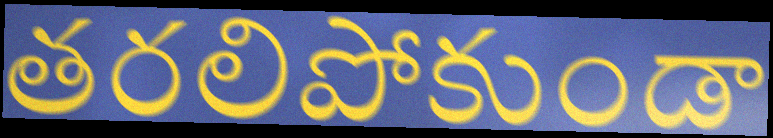
తరలిపోకుండా